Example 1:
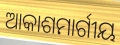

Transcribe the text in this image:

ଆକାଶମାର୍ଗୀୟ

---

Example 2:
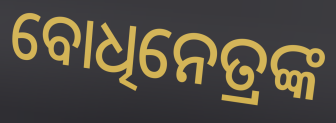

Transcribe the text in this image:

ବୋଧିନେତ୍ରଙ୍କ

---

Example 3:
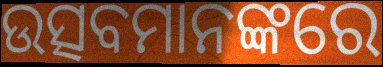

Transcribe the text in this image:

ଉତ୍ସବମାନଙ୍କରେ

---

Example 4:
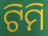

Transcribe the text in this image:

ଟିମି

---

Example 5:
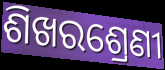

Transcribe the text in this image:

ଶିଖରଶ୍ରେଣୀ